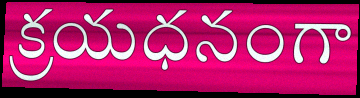
క్రయధనంగా